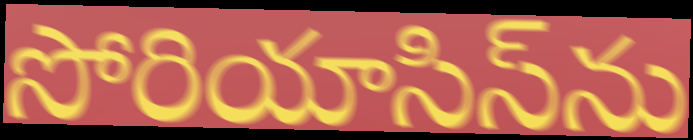
సోరియాసిస్‌ను